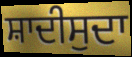
ਸ਼ਾਦੀਸੁਦਾ